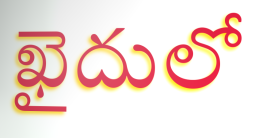
ఖైదులో